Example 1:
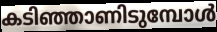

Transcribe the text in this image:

കടിഞ്ഞാണിടുമ്പോൾ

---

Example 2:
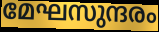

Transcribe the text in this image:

മേഘസുന്ദരം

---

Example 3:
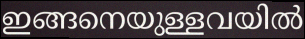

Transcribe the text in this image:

ഇങ്ങനെയുള്ളവയിൽ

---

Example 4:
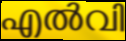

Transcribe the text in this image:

എൽവി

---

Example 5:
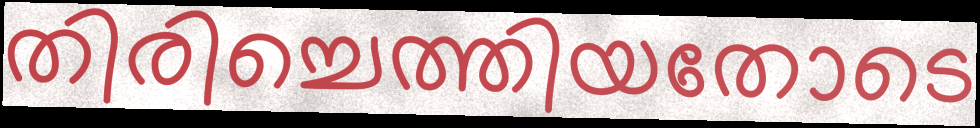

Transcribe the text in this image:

തിരിച്ചെത്തിയതോടെ